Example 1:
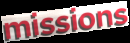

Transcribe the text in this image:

missions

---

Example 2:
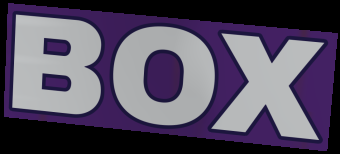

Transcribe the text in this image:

BOX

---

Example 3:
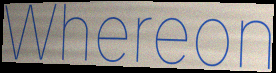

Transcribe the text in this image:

Whereon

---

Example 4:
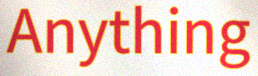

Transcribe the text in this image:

Anything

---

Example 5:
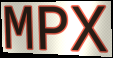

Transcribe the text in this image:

MPX